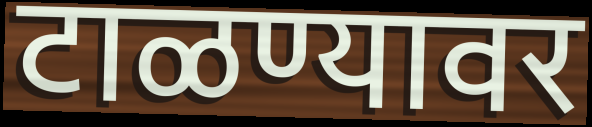
टाळण्यावर